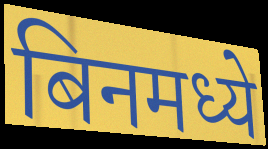
बिनमध्ये